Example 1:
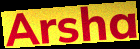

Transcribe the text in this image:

Arsha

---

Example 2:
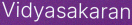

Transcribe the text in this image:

Vidyasakaran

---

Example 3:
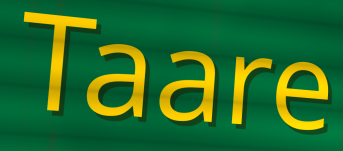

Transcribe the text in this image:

Taare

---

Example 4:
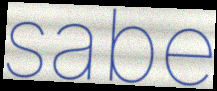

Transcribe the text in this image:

sabe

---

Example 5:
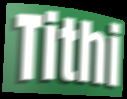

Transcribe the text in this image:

Tithi